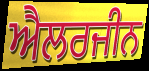
ਐਲਰਜੀਨ